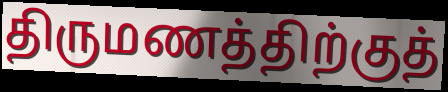
திருமணத்திற்குத்